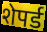
शेपर्ड